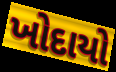
ખોદાયો